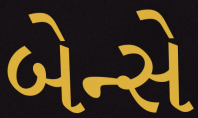
બેન્સે